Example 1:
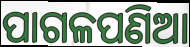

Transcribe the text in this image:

ପାଗଳପଣିଆ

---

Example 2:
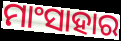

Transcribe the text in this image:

ମାଂସାହାର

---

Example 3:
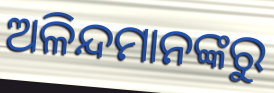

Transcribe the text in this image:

ଅଳିନ୍ଦମାନଙ୍କରୁ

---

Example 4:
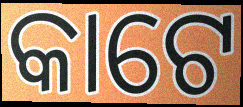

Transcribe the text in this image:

କାଟେ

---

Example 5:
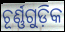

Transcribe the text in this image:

ଚୂର୍ଣ୍ଣଗୁଡ଼ିକ